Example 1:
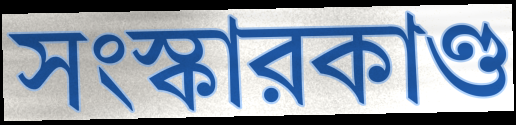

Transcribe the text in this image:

সংস্কারকাণ্ড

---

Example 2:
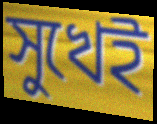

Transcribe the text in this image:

সুখেই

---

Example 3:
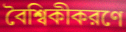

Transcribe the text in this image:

বৈশ্বিকীকরণে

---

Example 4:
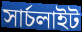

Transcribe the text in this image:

সার্চলাইট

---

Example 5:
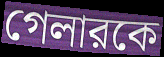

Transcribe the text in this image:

গেলারকে